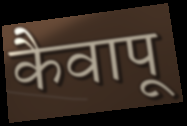
कैवापू